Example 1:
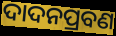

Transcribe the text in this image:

ଦାଦନପ୍ରବଣ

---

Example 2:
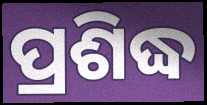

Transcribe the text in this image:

ପ୍ରଶିଦ୍ଧ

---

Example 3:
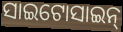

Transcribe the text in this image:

ସାଇଟୋସାଇନ୍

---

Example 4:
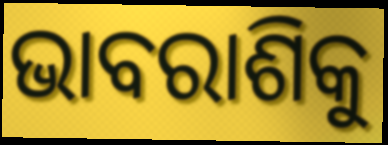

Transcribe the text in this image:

ଭାବରାଶିକୁ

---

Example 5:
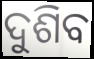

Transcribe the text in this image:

ଦୁଶିବ